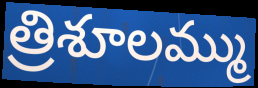
త్రిశూలమ్ము